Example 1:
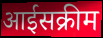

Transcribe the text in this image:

आईसक्रीम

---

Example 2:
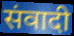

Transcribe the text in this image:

संवादी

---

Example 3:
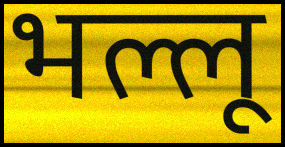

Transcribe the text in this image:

भल्लू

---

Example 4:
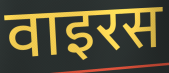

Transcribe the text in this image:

वाइरस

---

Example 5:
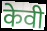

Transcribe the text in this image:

केवी